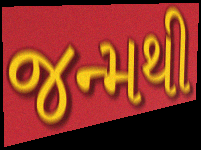
જન્મથી